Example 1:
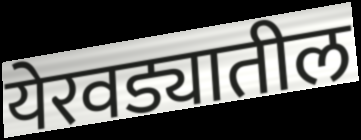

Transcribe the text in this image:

येरवड्यातील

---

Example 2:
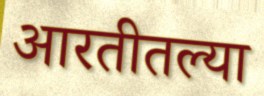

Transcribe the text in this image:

आरतीतल्या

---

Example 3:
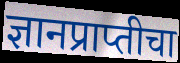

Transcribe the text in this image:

ज्ञानप्राप्तीचा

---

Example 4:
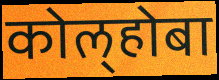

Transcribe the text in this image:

कोल्होबा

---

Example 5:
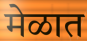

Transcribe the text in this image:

मेळात